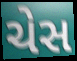
ચેસ